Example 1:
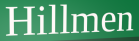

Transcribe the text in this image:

Hillmen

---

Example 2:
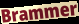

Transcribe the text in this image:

Brammer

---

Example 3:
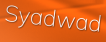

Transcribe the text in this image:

Syadwad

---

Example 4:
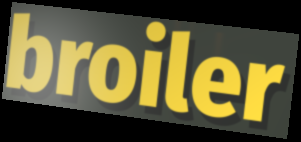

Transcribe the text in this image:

broiler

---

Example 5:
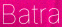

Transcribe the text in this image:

Batra